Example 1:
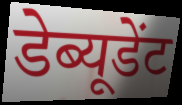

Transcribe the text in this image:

डेब्यूडेंट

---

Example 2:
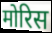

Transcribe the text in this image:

मोरिस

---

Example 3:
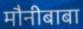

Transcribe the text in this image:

मौनीबाबा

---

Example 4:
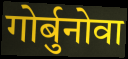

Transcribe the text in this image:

गोर्बुनोवा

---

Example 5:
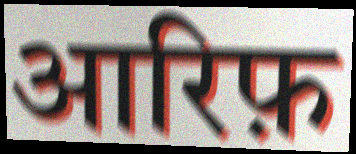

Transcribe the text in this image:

आरिफ़